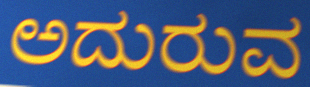
ಅದುರುವ